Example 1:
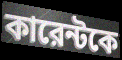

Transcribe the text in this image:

কারেন্টকে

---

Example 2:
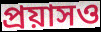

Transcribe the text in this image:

প্রয়াসও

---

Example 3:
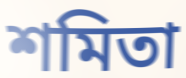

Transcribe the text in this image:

শমিতা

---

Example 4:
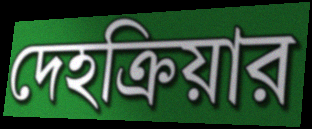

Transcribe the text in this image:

দেহক্রিয়ার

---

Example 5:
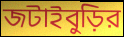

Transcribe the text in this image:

জটাইবুড়ির